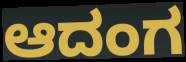
ಆದಂಗ